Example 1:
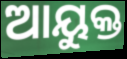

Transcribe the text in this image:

ଆୟୁକ୍ତ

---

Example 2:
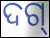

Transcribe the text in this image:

ଦଗ୍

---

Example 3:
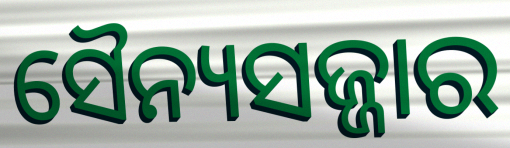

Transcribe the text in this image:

ସୈନ୍ୟସଜ୍ଜାର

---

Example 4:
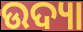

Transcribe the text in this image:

ଉଦ୍ୟା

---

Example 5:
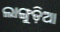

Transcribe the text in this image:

ଲାଙ୍ଗୁଡ଼ିଆ